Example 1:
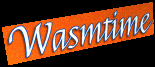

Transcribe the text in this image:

Wasmtime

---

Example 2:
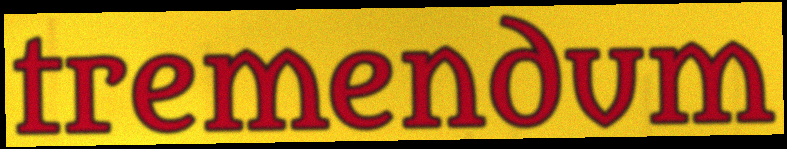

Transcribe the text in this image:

tremendum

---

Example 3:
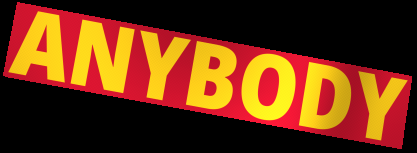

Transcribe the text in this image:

ANYBODY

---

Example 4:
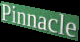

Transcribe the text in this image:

Pinnacle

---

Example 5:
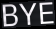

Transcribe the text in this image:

BYE